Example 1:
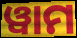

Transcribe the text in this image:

ୱାମ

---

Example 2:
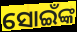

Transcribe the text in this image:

ସୋଇଁଙ୍କ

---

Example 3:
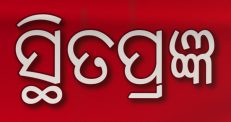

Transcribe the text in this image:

ସ୍ଥିତପ୍ରଜ୍ଞ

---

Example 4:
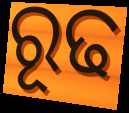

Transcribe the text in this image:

ରୂଢ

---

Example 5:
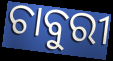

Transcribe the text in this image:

ଚାବୁରୀ